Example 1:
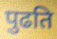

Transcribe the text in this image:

पुढति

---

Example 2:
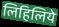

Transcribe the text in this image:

लिहिलिये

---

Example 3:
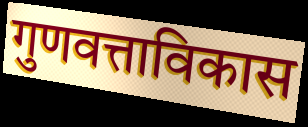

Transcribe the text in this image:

गुणवत्ताविकास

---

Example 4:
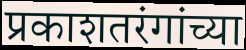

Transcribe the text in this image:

प्रकाशतरंगांच्या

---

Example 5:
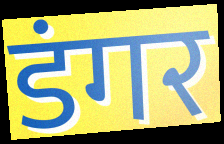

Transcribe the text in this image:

डंगर